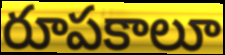
రూపకాలూ